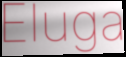
Eluga